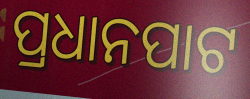
ପ୍ରଧାନପାଟ